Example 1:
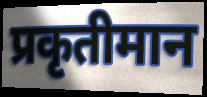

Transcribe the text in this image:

प्रकृतीमान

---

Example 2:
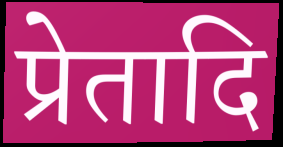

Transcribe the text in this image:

प्रेतादि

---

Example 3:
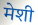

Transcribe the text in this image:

मेशी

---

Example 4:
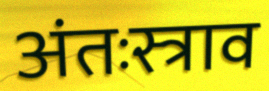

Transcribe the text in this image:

अंतःस्त्राव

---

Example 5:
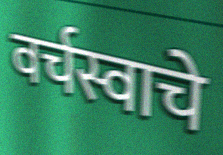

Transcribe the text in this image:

वर्चस्वाचे